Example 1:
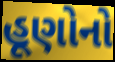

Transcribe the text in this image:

હૂણોનો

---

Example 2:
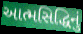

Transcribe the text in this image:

આત્મસિદ્ધિનું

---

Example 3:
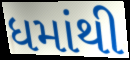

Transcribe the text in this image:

ધમાંથી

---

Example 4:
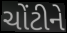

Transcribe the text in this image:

ચોંટીને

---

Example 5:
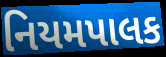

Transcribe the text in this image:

નિયમપાલક